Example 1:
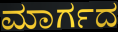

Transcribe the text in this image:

ಮಾರ್ಗದ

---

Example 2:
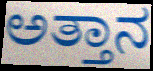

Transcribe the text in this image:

ಅತ್ತಾನ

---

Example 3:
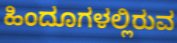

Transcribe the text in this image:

ಹಿಂದೂಗಳಲ್ಲಿರುವ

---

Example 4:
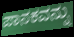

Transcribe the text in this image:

ಪಾನಕವನ್ನು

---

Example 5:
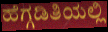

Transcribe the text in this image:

ಹೆಗ್ಗಡಿತಿಯಲ್ಲಿ